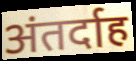
अंतर्दाह